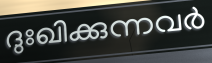
ദുഃഖിക്കുന്നവർ